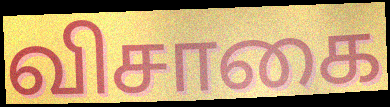
விசாகை